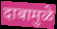
दाबामुळे